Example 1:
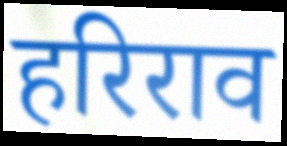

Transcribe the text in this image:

हरिराव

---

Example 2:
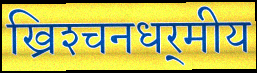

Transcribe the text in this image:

ख्रिश्चनधर्मीय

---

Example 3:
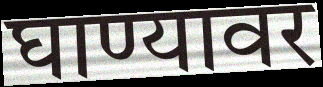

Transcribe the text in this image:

घाण्यावर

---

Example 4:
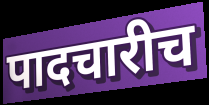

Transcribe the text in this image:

पादचारीच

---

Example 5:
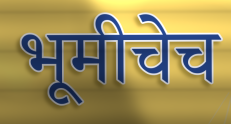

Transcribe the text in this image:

भूमीचेच